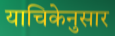
याचिकेनुसार